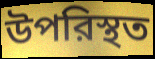
উপরিস্থত